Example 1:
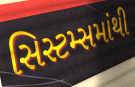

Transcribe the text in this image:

સિસ્ટમ્સમાંથી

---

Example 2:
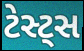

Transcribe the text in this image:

ટેસ્ટ્સ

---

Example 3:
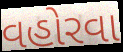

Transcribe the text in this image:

વહોરવા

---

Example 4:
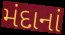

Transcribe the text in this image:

મંદાનાં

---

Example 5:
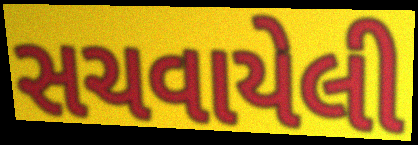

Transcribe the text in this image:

સચવાયેલી